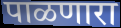
पाळणारा